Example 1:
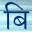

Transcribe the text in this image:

बि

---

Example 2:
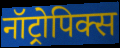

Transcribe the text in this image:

नॉट्रोपिक्स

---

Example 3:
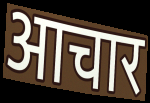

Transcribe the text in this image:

आचार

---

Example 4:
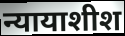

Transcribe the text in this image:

न्यायाशीश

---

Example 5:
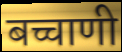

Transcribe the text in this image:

बच्चाणी